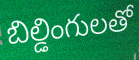
బిల్డింగులతో